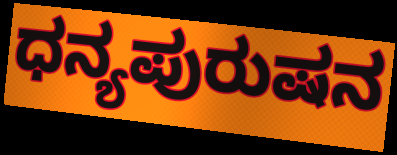
ಧನ್ಯಪುರುಷನ